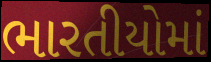
ભારતીયોમાં